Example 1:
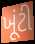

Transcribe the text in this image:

ખૂંટી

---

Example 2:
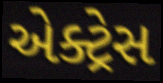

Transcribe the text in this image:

એક્ટ્રેસ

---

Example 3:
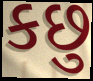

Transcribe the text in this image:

કછુ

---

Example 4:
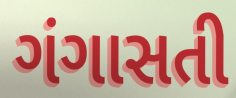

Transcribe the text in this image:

ગંગાસતી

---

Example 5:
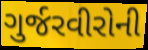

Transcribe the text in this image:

ગુર્જરવીરોની